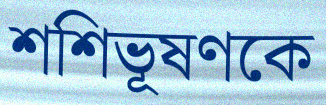
শশিভূষণকে